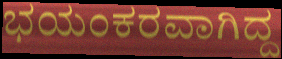
ಭಯಂಕರವಾಗಿದ್ದ